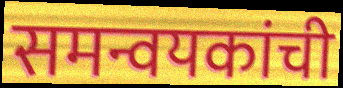
समन्वयकांची